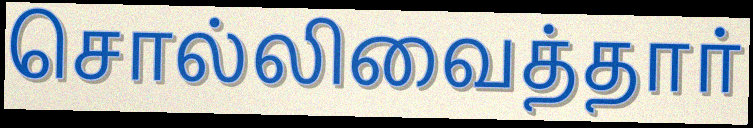
சொல்லிவைத்தார்